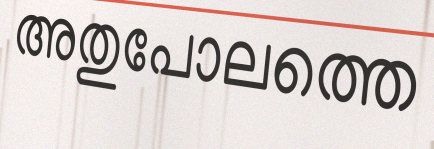
അതുപോലത്തെ